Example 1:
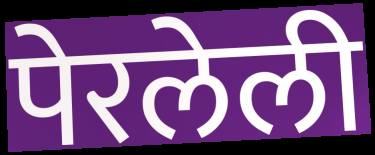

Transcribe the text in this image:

पेरलेली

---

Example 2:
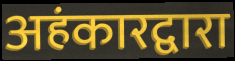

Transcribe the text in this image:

अहंकारद्वारा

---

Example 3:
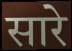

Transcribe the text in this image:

सारे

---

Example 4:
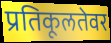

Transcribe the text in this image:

प्रतिकूलतेवर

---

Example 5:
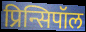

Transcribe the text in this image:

प्रिन्सिपॉल